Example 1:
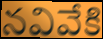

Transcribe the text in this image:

నవివేకి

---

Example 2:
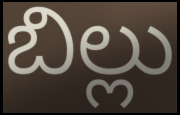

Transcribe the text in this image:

బిల్లు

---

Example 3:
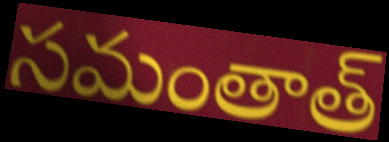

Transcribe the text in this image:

సమంతాత్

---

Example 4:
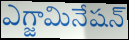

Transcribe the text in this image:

ఎగ్జామినేషన్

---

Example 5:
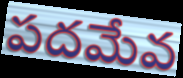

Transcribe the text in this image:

పదమేవ